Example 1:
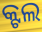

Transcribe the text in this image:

କ୍ଟଲ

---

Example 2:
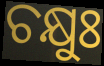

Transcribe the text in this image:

ଚକ୍ଷୁଃ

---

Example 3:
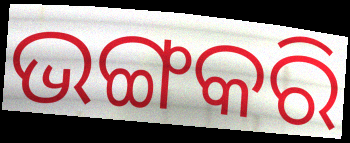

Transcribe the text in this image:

ଭଙ୍ଗକରି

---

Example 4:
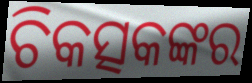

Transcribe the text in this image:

ଚିକତ୍ସକଙ୍କର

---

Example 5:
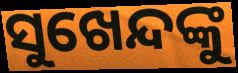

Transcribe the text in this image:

ସୁଖେନ୍ଦଙ୍କୁ